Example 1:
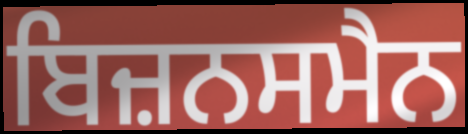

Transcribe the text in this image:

ਬਿਜ਼ਨਸਮੈਨ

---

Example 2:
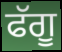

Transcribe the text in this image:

ਫੱਗੂ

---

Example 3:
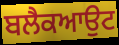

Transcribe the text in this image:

ਬਲੈਕਆਉਟ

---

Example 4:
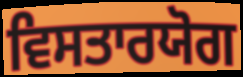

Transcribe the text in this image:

ਵਿਸਤਾਰਯੋਗ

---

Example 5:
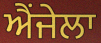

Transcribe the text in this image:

ਐਂਜੇਲਾ